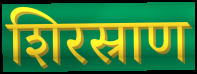
शिरस्राण